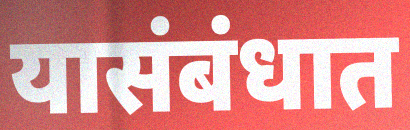
यासंबंधात